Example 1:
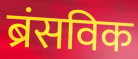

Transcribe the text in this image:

ब्रंसविक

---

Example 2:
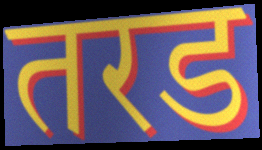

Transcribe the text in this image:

तरड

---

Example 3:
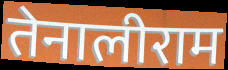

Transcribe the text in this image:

तेनालीराम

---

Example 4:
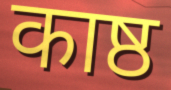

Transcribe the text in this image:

काष्ठ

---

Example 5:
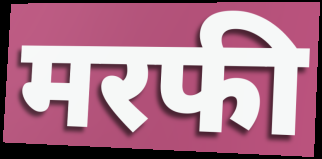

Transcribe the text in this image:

मरफी